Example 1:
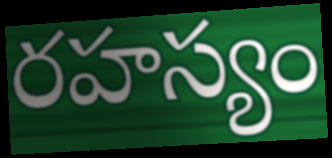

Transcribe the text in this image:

రహస్యం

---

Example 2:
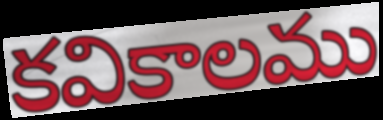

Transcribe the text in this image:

కవికాలము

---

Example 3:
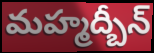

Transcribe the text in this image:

మహ్మద్బీన్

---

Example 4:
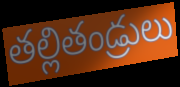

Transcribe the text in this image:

తల్లితండ్రులు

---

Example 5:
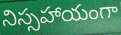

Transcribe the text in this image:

నిస్సహాయంగా